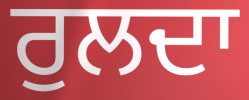
ਰੁਲਦਾ